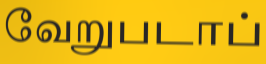
வேறுபடாப்